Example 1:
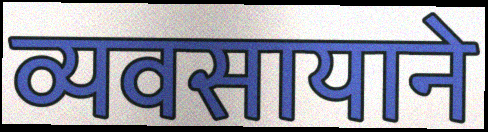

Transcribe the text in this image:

व्यवसायाने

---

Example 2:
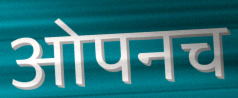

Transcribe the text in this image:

ओपनच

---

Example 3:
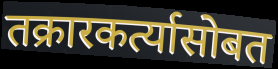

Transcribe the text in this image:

तक्रारकर्त्यासोबत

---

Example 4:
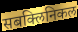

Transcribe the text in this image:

सबक्लिनिकल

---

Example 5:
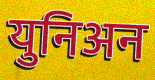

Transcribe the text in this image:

युनिअन